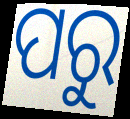
ପରୁ